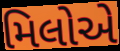
મિલોએ